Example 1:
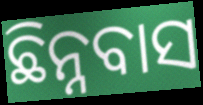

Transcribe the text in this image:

ଛିନ୍ନବାସ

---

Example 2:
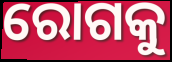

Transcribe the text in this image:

ରୋଗକୁ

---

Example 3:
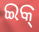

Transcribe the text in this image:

ଇକ୍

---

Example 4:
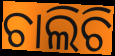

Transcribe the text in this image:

ଚାଲିଚି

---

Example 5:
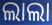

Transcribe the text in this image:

ଲାଲା